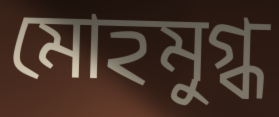
মোহমুগ্ধ